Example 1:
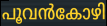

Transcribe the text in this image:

പൂവൻകോഴി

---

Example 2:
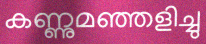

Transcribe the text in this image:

കണ്ണുമഞ്ഞളിച്ചു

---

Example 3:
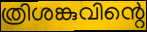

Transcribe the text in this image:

ത്രിശങ്കുവിന്റെ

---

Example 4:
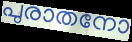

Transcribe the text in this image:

പുരാതനോ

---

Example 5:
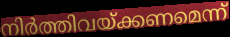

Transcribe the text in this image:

നിർത്തിവയ്ക്കണമെന്ന്